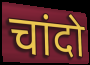
चांदो